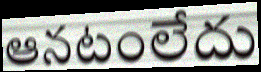
ఆనటంలేదు